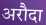
अरौदा